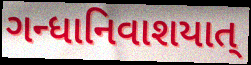
ગન્ધાનિવાશયાત્